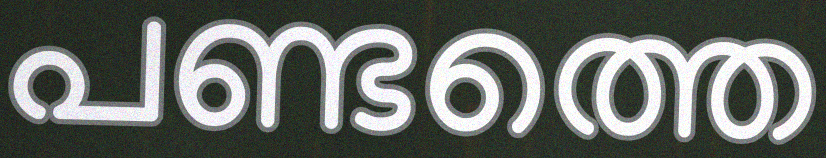
പണ്ടത്തെ